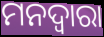
ମନଦ୍ଵାରା